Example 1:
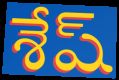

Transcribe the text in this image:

శేష్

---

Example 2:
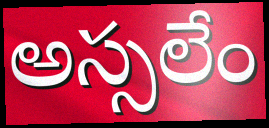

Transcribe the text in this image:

అస్సలేం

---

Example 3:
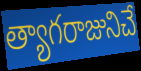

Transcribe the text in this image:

త్యాగరాజునిచే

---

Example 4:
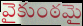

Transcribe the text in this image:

వైకుంఠమై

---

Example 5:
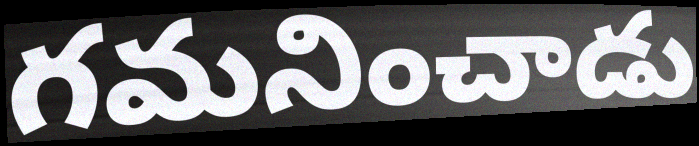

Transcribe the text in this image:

గమనించాడు